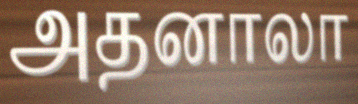
அதனாலா